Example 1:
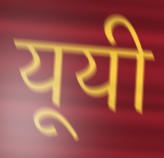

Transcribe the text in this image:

यूयी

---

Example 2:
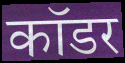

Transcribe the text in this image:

कॉडर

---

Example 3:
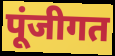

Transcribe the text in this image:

पूंजीगत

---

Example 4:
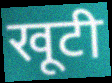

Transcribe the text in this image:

खूटी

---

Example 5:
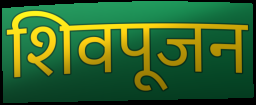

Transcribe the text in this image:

शिवपूजन